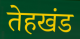
तेहखंड